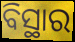
ବିସ୍ଥାର